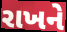
રાખને